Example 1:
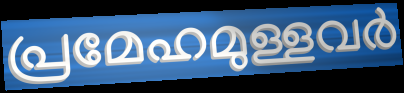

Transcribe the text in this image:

പ്രമേഹമുള്ളവർ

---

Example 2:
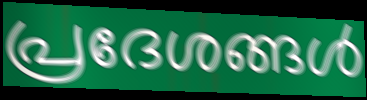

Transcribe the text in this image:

പ്രദേശങ്ങൾ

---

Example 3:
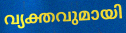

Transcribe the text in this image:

വ്യക്തവുമായി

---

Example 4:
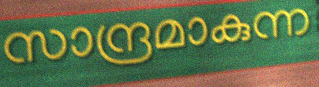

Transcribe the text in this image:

സാന്ദ്രമാകുന്ന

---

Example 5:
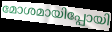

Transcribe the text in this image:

മോശമായിപ്പോയി